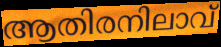
ആതിരനിലാവ്